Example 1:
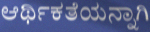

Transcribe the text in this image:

ಆರ್ಥಿಕತೆಯನ್ನಾಗಿ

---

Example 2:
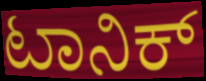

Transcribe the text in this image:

ಟಾನಿಕ್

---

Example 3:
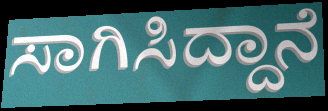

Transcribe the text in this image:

ಸಾಗಿಸಿದ್ದಾನೆ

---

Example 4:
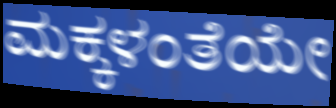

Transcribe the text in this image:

ಮಕ್ಕಳಂತೆಯೇ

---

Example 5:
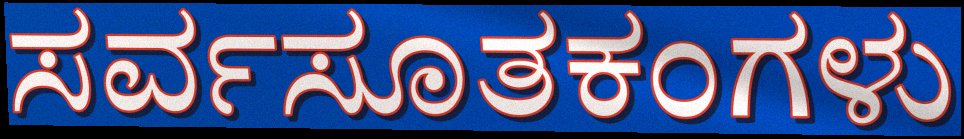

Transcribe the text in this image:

ಸರ್ವಸೂತಕಂಗಳು